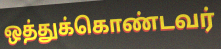
ஒத்துக்கொண்டவர்